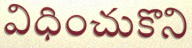
విధించుకొని